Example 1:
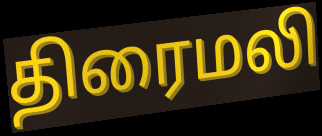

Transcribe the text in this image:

திரைமலி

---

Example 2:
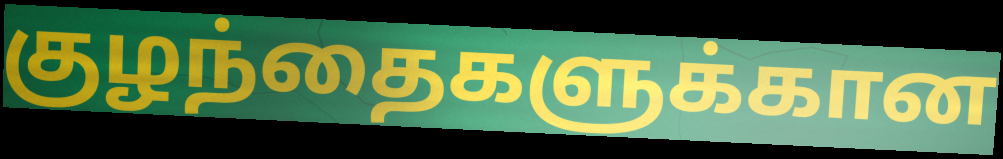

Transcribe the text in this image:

குழந்தைகளுக்கான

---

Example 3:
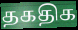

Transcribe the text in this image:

தகதிக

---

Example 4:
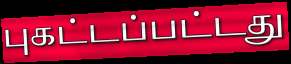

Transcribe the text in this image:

புகட்டப்பட்டது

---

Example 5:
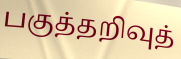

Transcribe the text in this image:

பகுத்தறிவுத்